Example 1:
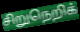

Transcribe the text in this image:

சிறுநெறிக்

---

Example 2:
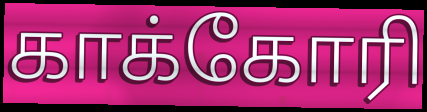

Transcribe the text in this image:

காக்கோரி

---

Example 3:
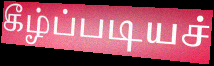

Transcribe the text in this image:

கீழ்ப்படியச்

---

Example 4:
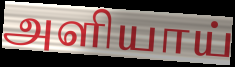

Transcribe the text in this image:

அளியாய்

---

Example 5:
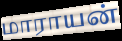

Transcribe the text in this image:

மாராயன்